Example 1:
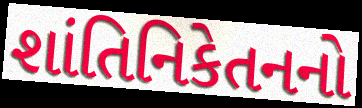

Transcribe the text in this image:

શાંતિનિકેતનનો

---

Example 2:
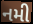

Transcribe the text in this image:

નમી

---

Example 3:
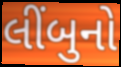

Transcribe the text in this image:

લીંબુનો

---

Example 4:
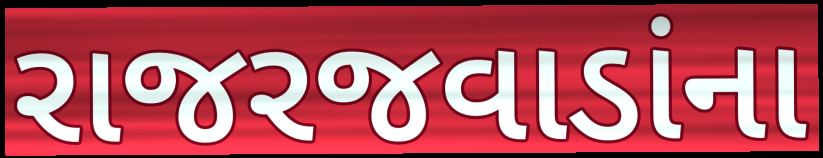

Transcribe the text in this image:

રાજરજવાડાંના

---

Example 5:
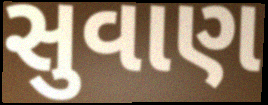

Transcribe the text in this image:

સુવાણ